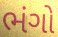
ભંગો